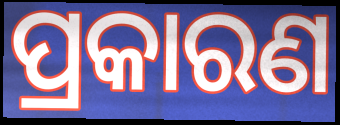
ପ୍ରକାରଣ